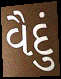
વૈદું